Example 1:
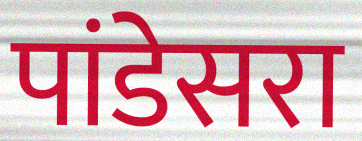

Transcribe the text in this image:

पांडेसरा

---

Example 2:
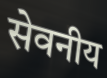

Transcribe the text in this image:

सेवनीय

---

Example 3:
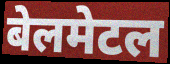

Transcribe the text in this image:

बेलमेटल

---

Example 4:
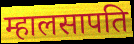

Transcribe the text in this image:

म्हालसापति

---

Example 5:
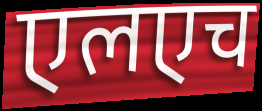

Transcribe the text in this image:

एलएच